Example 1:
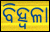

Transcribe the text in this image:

ବିହ୍ଵଳା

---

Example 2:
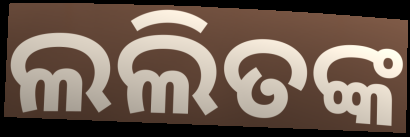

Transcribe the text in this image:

ଲଲିତଙ୍କ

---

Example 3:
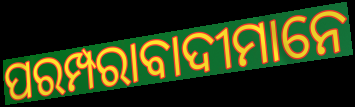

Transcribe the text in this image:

ପରମ୍ପରାବାଦୀମାନେ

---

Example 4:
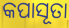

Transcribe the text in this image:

କପାସୂତା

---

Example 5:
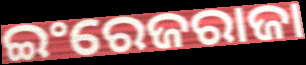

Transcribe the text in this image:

ଇଂରେଜରାଜା